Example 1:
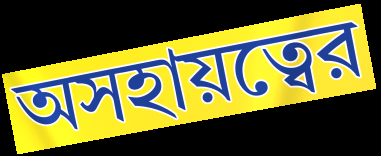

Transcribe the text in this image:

অসহায়ত্বের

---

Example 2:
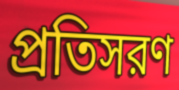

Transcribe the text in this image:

প্রতিসরণ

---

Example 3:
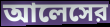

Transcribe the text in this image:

আলেসের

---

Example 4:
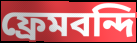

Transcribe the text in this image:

ফ্রেমবন্দি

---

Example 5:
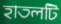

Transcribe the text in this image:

হাতলটি